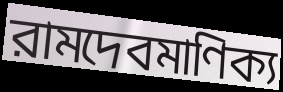
রামদেবমাণিক্য